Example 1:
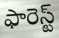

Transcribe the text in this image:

ఫారెస్ట్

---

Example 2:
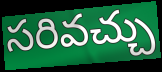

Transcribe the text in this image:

సరివచ్చు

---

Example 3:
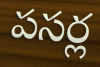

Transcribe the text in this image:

పసర్ల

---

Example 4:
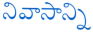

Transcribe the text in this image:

నివాసాన్ని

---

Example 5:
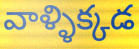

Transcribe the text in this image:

వాళ్ళిక్కడ